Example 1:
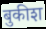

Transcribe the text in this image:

बुकीश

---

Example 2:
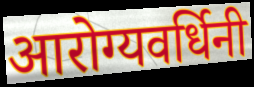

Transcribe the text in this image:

आरोग्यवर्धिनी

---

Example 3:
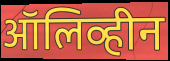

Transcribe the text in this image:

ऑलिव्हीन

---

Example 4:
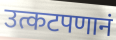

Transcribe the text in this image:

उत्कटपणानं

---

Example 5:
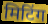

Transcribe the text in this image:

मिटिंग